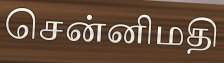
சென்னிமதி